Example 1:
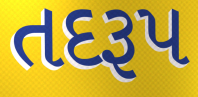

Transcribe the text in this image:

તદરૂપ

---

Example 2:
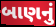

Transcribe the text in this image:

બાણનું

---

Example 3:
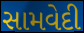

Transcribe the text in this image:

સામવેદી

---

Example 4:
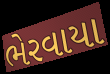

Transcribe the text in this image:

ભેરવાયા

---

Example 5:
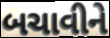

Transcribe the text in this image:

બચાવીને